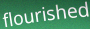
flourished